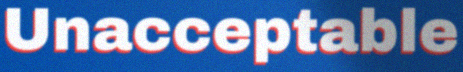
Unacceptable